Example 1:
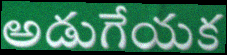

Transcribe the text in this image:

అడుగేయక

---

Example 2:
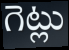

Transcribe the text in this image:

గెట్లు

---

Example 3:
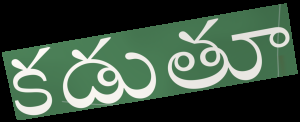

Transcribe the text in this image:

కడుతూ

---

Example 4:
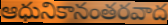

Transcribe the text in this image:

ఆధునికానంతరవాద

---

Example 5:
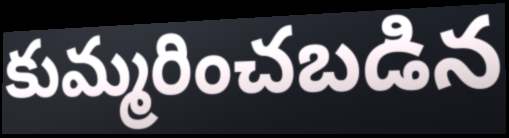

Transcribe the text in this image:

కుమ్మరించబడిన